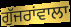
ਗੁੱਜਰਾਂਵਾਲਾ